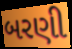
બરણી